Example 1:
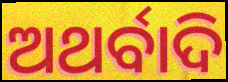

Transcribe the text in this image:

ଅଥର୍ବାଦି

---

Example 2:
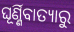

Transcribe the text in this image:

ଘୂର୍ଣ୍ଣିବାତ୍ୟାରୁ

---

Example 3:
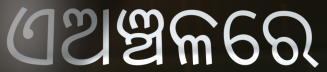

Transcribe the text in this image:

ଏଅଞ୍ଚଳରେ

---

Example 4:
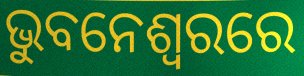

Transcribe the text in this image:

ଭୁବନେଶ୍ବରରେ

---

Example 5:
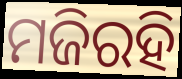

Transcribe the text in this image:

ମଜିରହି